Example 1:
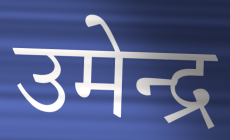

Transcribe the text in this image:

उमेन्द्र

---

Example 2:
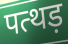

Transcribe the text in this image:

पत्थड़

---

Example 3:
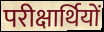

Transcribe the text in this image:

परीक्षार्थियों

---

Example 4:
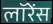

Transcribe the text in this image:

लॉरेंस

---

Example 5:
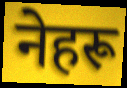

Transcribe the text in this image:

नेहरू